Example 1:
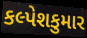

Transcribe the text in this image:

કલ્પેશકુમાર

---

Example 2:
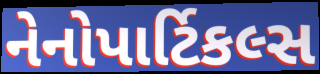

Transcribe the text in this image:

નેનોપાર્ટિકલ્સ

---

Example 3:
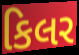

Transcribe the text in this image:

કિલર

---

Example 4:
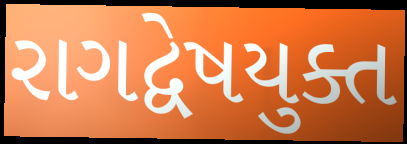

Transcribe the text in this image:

રાગદ્વેષયુક્ત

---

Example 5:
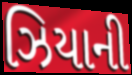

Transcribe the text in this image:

ઝિયાની